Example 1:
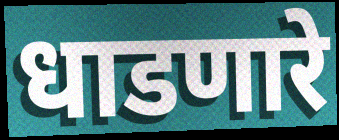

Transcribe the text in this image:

धाडणारे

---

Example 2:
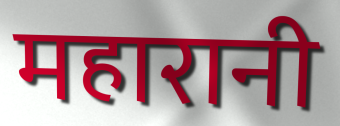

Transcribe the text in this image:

महारानी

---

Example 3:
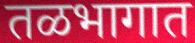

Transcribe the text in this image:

तळभागात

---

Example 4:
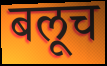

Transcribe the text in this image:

बलूच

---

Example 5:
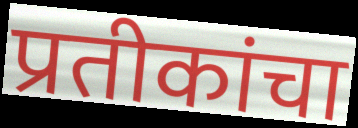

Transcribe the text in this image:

प्रतीकांचा